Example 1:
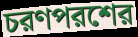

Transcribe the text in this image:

চরণপরশের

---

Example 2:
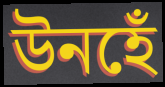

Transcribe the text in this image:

উনহেঁ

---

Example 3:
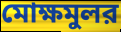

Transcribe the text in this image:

মোক্ষমুলর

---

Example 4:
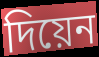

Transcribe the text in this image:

দিয়েন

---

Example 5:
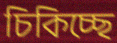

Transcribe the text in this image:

চিকিচ্ছে